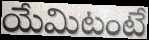
యేమిటంటే